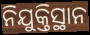
ନିଯୁକ୍ତିସ୍ଥାନ